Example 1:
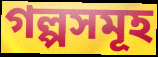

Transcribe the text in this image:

গল্পসমূহ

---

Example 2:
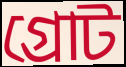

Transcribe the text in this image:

গ্রোট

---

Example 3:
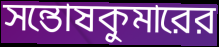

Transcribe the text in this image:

সন্তোষকুমারের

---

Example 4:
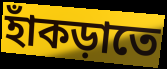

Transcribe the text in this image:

হাঁকড়াতে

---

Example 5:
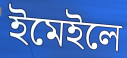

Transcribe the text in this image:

ইমেইলে